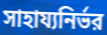
সাহায্যনির্ভর